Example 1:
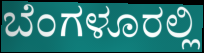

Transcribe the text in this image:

ಬೆಂಗಳೂರಲ್ಲಿ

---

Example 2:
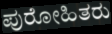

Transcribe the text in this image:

ಪುರೋಹಿತರು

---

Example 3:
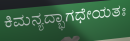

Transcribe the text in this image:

ಕಿಮನ್ಯದ್ಭಾಗಧೇಯತಃ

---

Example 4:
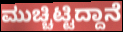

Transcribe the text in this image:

ಮುಚ್ಚಿಟ್ಟಿದ್ದಾನೆ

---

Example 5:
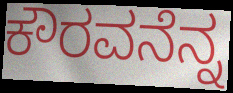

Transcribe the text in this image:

ಕೌರವನೆನ್ನ